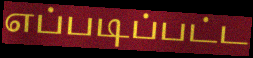
எப்படிப்பட்ட